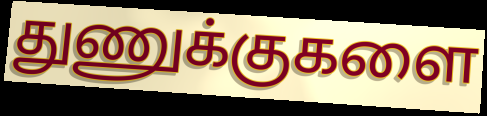
துணுக்குகளை